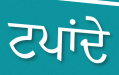
ਟਪਾਂਦੇ